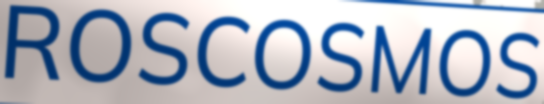
ROSCOSMOS